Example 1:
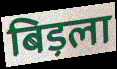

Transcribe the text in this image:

बिड़ला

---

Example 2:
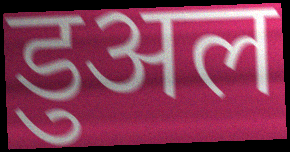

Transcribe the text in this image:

डुअल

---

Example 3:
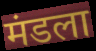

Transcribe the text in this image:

मंडला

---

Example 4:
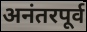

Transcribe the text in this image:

अनंतरपूर्व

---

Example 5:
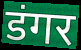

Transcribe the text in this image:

डंगर